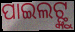
ପାଇଲଟ୍ଙ୍କୁ